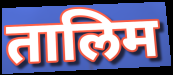
तालिम